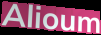
Alioum